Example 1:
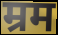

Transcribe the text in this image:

म्रम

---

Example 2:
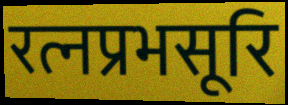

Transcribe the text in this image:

रत्नप्रभसूरि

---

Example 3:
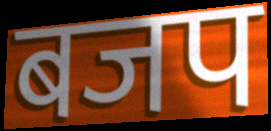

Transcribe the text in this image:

बजप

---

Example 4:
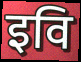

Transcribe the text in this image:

इवि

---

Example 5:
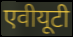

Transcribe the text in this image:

एवीयूटी